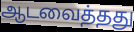
ஆடவைத்தது